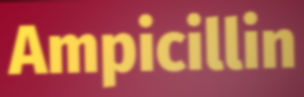
Ampicillin